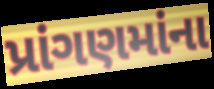
પ્રાંગણમાંના